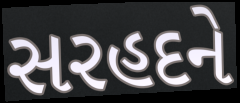
સરહદને